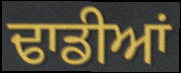
ਢਾਡੀਆਂ